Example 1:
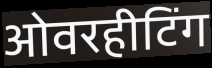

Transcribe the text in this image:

ओवरहीटिंग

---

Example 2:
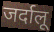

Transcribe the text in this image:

जर्दालू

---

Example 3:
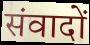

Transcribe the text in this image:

संवादों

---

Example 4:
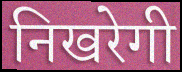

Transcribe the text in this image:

निखरेगी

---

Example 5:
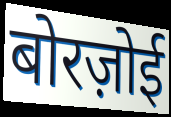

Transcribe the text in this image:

बोरज़ोई